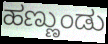
ಹಣ್ಣುಂಡು